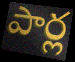
పార్ల